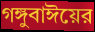
গঙ্গুবাঈয়ের